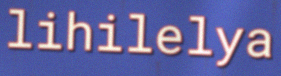
lihilelya